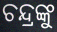
ଚନ୍ଦ୍ରଙ୍କୁ